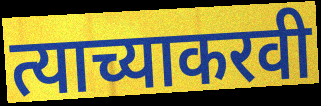
त्याच्याकरवी